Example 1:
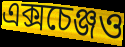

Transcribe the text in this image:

এক্সচেঞ্জও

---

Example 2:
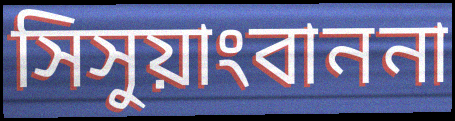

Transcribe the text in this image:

সিসুয়াংবাননা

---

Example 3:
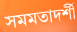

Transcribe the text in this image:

সমমতাদর্শী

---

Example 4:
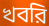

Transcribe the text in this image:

খবরি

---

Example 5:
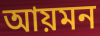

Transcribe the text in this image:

আয়মন